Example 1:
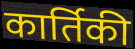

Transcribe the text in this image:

कार्तिकी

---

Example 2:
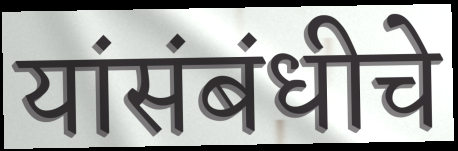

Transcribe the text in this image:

यांसंबंधीचे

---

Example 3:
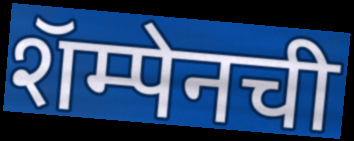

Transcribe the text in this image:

शॅम्पेनची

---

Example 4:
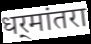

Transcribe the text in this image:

धर्मांतरा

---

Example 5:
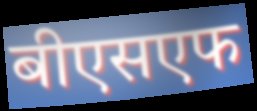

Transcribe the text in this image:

बीएसएफ